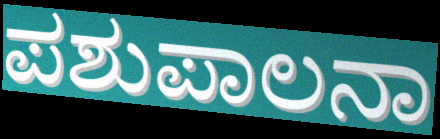
ಪಶುಪಾಲನಾ